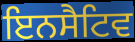
ਇਨਸੈਟਿਵ